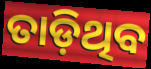
ତାଡ଼ିଥିବ